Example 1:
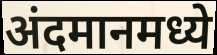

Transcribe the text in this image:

अंदमानमध्ये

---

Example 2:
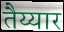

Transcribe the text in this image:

तैय्यार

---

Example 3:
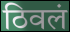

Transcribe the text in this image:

ठिवलं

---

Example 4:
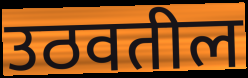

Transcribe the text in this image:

उठवतील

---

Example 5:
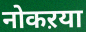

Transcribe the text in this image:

नोकऱया